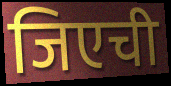
जिएची